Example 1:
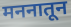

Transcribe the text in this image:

मननातून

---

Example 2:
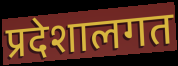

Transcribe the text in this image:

प्रदेशालगत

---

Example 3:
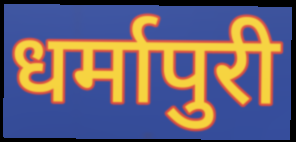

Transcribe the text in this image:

धर्मापुरी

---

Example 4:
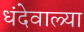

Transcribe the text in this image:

धंदेवाल्या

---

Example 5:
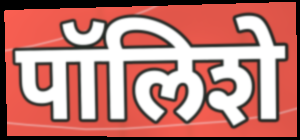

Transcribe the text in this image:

पॉलिशे